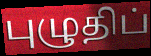
புழுதிப்